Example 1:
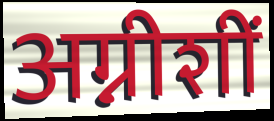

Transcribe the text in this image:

अग्नीशीं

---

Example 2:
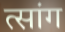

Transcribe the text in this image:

त्सांग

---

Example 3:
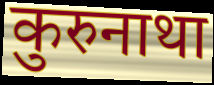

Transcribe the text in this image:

कुरुनाथा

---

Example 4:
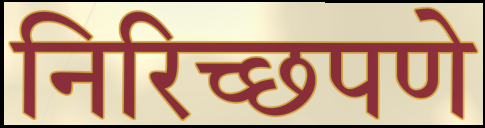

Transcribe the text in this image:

निरिच्छपणे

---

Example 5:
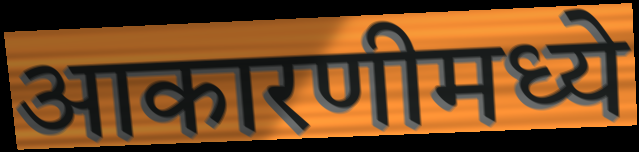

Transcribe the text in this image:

आकारणीमध्ये